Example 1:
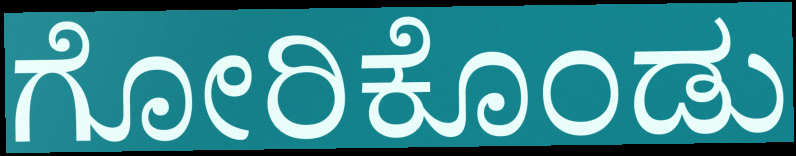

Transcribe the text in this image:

ಗೋರಿಕೊಂಡು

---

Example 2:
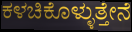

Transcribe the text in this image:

ಕಳಚಿಕೊಳ್ಳುತ್ತೇನೆ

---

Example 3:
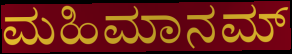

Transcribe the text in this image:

ಮಹಿಮಾನಮ್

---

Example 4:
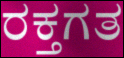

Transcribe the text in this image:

ರಕ್ತಗತ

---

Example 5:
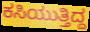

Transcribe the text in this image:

ಕಸಿಯುತ್ತಿದ್ದ